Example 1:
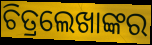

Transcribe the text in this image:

ଚିତ୍ରଲେଖାଙ୍କର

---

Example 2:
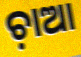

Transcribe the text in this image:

ଚ଼ାଆ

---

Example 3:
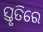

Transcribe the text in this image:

ସ୍ତୃତିରେ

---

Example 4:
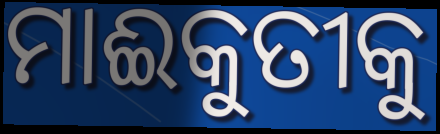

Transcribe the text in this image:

ମାଈକୁତୀକୁ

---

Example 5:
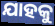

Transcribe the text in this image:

ଯାହକୁ